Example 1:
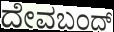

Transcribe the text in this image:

ದೇವಬಂದ್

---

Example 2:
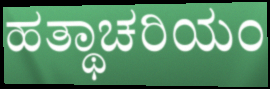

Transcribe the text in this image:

ಹತ್ಥಾಚರಿಯಂ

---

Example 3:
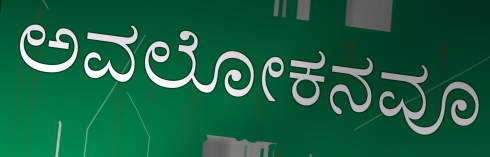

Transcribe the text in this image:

ಅವಲೋಕನವೂ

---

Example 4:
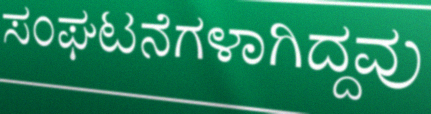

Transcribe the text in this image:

ಸಂಘಟನೆಗಳಾಗಿದ್ದವು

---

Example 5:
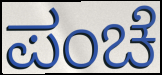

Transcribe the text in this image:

ಪಂಚೆ